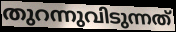
തുറന്നുവിടുന്നത്